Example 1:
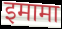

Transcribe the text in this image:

इमामा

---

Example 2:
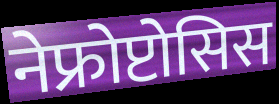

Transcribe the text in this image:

नेफ्रोप्टोसिस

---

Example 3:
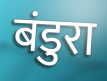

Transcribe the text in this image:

बंडुरा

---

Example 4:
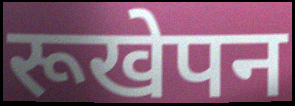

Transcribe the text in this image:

रूखेपन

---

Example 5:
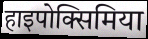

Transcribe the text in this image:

हाइपोक्सिमिया